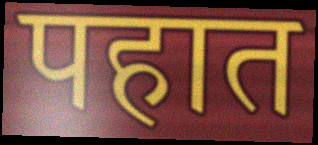
पहात